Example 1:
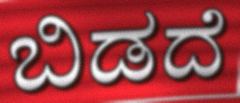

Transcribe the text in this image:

ಬಿಡದೆ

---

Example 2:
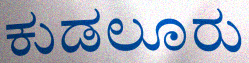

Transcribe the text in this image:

ಕುಡಲೂರು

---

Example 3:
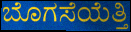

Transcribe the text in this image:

ಬೊಗಸೆಯೆತ್ತಿ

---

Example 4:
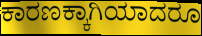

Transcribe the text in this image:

ಕಾರಣಕ್ಕಾಗಿಯಾದರೂ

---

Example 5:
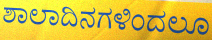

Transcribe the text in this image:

ಶಾಲಾದಿನಗಳಿಂದಲೂ